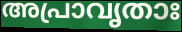
അപ്രാവൃതാഃ